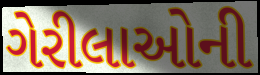
ગેરીલાઓની